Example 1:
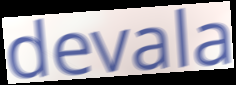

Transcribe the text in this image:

devala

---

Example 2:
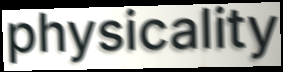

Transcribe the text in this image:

physicality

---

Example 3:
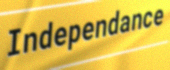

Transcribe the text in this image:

Independance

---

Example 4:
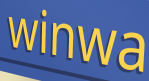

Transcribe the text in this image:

winwa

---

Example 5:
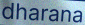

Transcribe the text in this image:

dharana